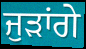
ਜੁੜਾਂਗੇ